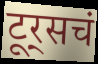
टूर्सचं